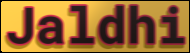
Jaldhi